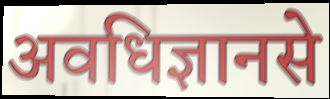
अवधिज्ञानसे